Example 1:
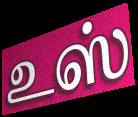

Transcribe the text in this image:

உஸ்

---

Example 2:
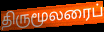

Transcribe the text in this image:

திருமூலரைப்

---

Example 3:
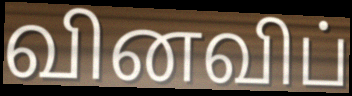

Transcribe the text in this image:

வினவிப்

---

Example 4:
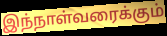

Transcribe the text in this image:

இந்நாள்வரைக்கும்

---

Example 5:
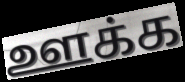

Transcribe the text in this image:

ஊக்க